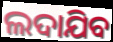
ଲଦାଯିବ